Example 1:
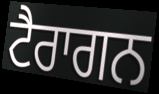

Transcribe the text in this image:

ਟੈਰਾਗਨ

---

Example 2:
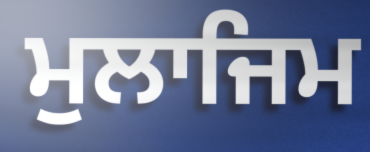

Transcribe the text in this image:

ਮੁਲਾਜਿਮ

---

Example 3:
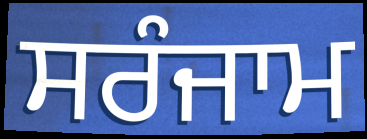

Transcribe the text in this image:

ਸਰੰਜਾਮ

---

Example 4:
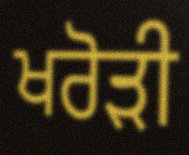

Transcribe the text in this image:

ਖਰੋੜੀ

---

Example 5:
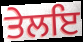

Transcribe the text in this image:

ਤੇਲਇ